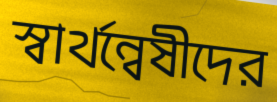
স্বার্থন্বেষীদের